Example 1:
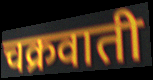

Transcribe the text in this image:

चक्रवाती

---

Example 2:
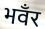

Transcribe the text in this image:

भवँर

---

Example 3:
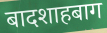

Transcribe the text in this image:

बादशाहबाग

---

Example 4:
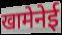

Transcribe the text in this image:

खामेनेई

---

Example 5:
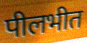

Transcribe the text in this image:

पीलभीत